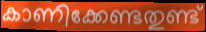
കാണിക്കേണ്ടതുണ്ട്